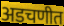
अडचणीत